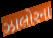
ઝાલોરના